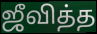
ஜீவித்த